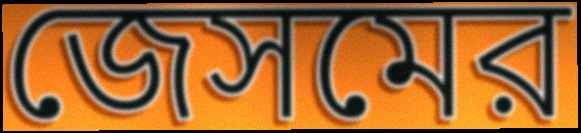
জেসমের